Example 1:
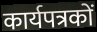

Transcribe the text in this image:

कार्यपत्रकों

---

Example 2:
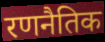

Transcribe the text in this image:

रणनैतिक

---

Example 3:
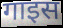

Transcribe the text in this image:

गाइस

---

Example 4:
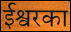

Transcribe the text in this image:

ईश्वरका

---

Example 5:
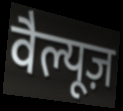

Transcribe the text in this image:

वैल्यूज़